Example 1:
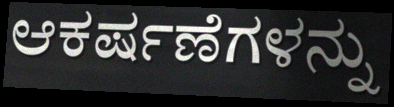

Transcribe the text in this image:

ಆಕರ್ಷಣೆಗಳನ್ನು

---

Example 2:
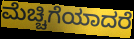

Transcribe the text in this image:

ಮೆಚ್ಚಿಗೆಯಾದರೆ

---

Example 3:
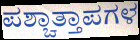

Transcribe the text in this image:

ಪಶ್ಚಾತ್ತಾಪಗಳ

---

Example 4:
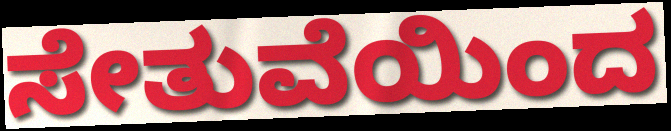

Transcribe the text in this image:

ಸೇತುವೆಯಿಂದ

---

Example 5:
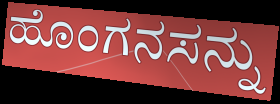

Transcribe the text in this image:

ಹೊಂಗನಸನ್ನು